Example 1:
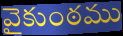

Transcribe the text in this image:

వైకుంఠము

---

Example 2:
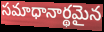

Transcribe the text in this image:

సమాధానార్థమైన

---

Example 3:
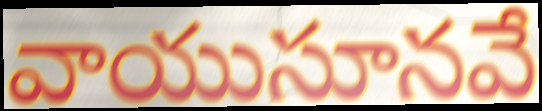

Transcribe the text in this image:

వాయుసూనవే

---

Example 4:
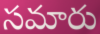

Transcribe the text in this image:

సమారు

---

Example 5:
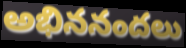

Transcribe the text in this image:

అభిననందలు